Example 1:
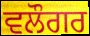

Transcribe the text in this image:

ਵਲੌਗਰ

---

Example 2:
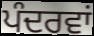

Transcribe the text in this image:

ਪੰਦਰਵਾਂ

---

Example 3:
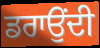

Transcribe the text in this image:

ਡਰਾਉਂਦੀ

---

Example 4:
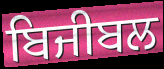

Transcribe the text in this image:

ਬਿਜੀਬਲ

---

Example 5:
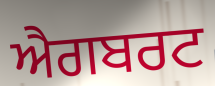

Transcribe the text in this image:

ਐਗਬਰਟ